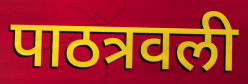
पाठत्रवली